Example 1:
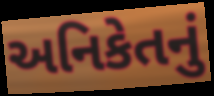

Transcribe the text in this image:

અનિકેતનું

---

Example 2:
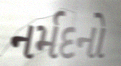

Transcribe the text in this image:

નર્મદનો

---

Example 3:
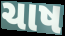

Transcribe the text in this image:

ચાષ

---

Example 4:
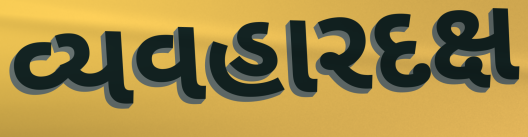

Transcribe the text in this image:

વ્યવહારદક્ષ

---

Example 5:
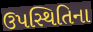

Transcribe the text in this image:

ઉપસ્થિતિના